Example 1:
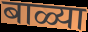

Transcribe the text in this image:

बाळ्या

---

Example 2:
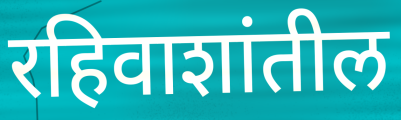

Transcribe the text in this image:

रहिवाशांतील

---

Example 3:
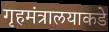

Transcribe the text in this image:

गृहमंत्रालयाकडे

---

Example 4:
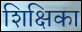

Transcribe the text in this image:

शिक्षिका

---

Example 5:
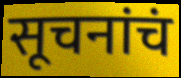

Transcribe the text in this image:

सूचनांचं